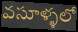
వసూళ్ళలో